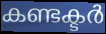
കണ്ടക്ടർ